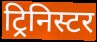
ट्रिनिस्टर